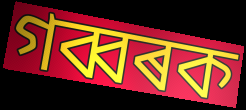
গব্বৰক